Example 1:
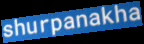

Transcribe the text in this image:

shurpanakha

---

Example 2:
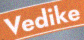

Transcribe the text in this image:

Vedike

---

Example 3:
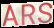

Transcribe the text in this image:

ARS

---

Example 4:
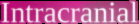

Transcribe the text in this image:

Intracranial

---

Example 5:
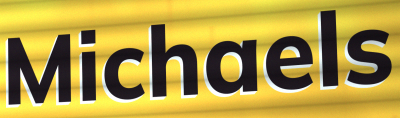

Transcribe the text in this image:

Michaels